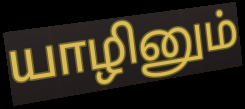
யாழினும்